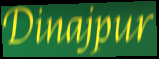
Dinajpur